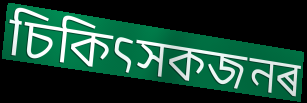
চিকিৎসকজনৰ